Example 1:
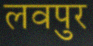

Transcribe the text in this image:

लवपुर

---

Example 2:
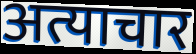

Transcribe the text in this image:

अत्‍याचार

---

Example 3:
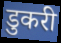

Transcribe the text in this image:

डुकरी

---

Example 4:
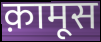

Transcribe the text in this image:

क़ामूस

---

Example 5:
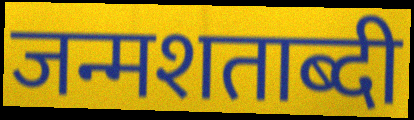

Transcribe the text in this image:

जन्मशताब्दी